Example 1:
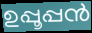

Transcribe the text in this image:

ഉപ്പൂപ്പൻ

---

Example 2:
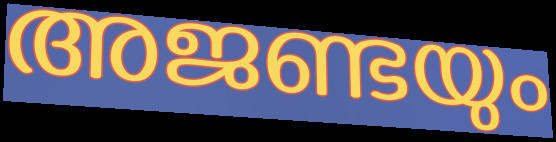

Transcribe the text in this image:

അജണ്ടയും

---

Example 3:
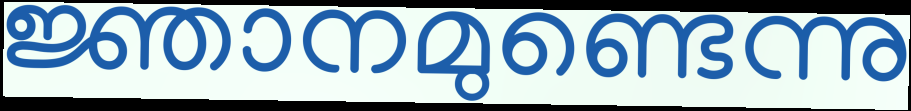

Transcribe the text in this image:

ജ്ഞാനമുണ്ടെന്നു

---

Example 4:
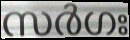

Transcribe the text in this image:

സർഗഃ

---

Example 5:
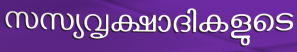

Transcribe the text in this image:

സസ്യവൃക്ഷാദികളുടെ